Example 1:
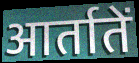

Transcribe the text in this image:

आर्तातें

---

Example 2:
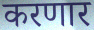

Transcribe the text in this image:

करणार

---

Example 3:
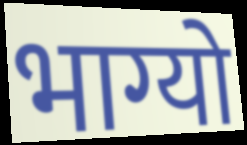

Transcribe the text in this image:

भाग्यो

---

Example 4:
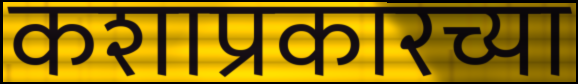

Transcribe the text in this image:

कशाप्रकारच्या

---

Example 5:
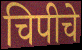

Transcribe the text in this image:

चिपीचे